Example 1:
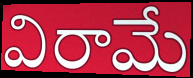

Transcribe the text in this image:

విరామే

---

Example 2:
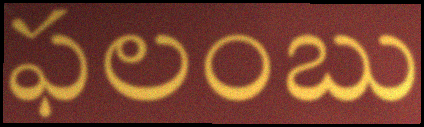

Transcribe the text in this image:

ఫలంబు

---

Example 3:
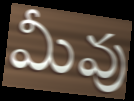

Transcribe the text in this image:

మీవు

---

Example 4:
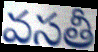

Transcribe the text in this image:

వసతీ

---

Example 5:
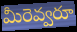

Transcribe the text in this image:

మీరెవ్వరూ